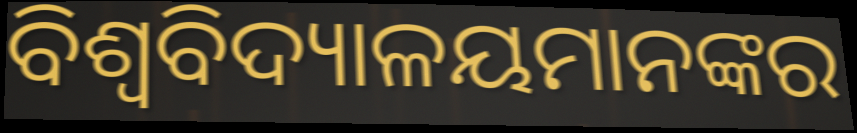
ବିଶ୍ଵବିଦ୍ୟାଳୟମାନଙ୍କର